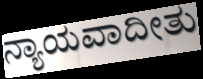
ನ್ಯಾಯವಾದೀತು